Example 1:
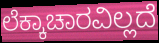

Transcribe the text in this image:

ಲೆಕ್ಕಾಚಾರವಿಲ್ಲದೆ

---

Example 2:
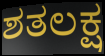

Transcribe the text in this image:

ಶತಲಕ್ಷ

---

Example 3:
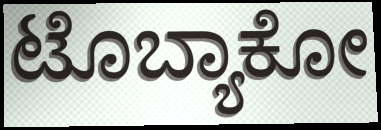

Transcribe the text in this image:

ಟೊಬ್ಯಾಕೋ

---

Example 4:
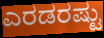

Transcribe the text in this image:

ಎರಡರಷ್ಟು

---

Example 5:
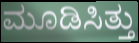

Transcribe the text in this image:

ಮೂಡಿಸಿತ್ತು